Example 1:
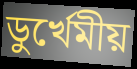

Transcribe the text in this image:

ডুর্খেমীয়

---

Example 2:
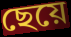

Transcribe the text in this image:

ছেয়ে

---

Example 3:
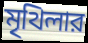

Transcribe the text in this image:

মৃথিলার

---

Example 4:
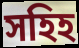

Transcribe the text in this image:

সহিহ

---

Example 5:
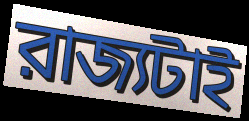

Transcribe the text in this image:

রাজ্যটাই